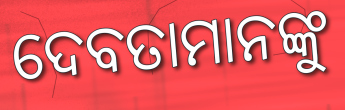
ଦେବତାମାନଙ୍କୁ